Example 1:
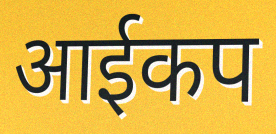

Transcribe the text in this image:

आईकप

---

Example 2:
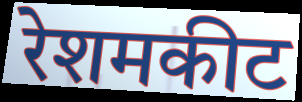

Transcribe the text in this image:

रेशमकीट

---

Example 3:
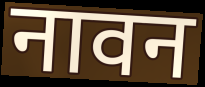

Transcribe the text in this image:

नावन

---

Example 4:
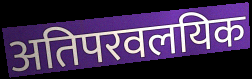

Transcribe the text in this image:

अतिपरवलयिक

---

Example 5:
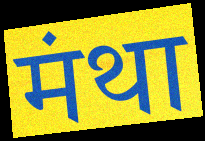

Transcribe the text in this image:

मंथा